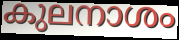
കുലനാശം